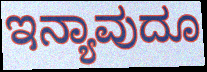
ಇನ್ಯಾವುದೂ